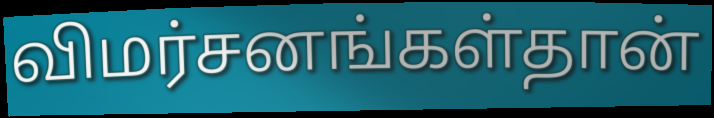
விமர்சனங்கள்தான்